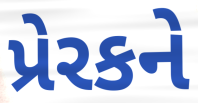
પ્રેરકને